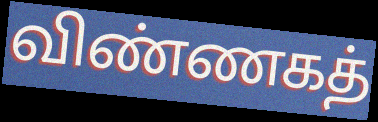
விண்ணகத்